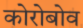
कोरोबोव